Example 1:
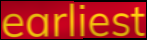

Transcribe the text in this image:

earliest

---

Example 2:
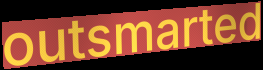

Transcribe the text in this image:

outsmarted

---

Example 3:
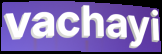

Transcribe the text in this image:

vachayi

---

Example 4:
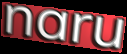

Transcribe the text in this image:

naru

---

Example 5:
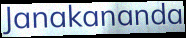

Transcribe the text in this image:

Janakananda